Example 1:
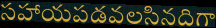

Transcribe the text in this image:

సహాయపడవలసినదిగా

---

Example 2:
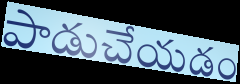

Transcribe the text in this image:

పాడుచేయడం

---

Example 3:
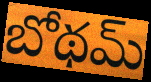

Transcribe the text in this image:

బోథమ్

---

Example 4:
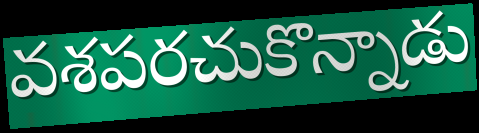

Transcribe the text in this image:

వశపరచుకొన్నాడు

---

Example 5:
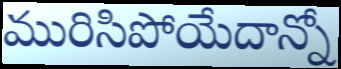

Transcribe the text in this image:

మురిసిపోయేదాన్నో